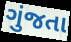
ગુંજતા